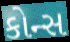
કોન્સ